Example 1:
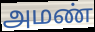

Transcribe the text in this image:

அமண்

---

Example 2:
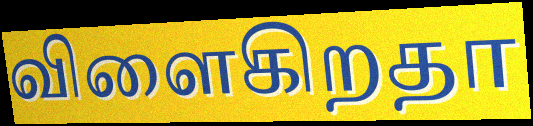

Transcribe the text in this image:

விளைகிறதா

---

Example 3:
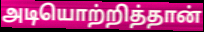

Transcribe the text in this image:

அடியொற்றித்தான்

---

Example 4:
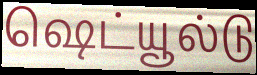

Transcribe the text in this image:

ஷெட்யூல்டு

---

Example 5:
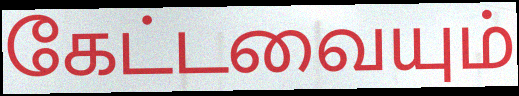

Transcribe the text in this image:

கேட்டவையும்